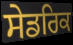
ਸੇਡਰਿਕ